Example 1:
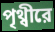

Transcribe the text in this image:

পৃথ্বীরে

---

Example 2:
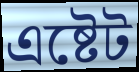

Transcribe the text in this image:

এষ্টেট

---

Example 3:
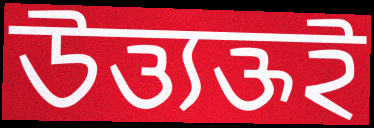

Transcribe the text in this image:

উত্ত্যক্তই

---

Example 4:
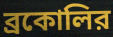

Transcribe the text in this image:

ব্রকোলির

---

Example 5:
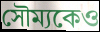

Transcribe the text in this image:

সৌম্যকেও